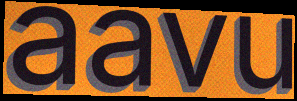
aavu